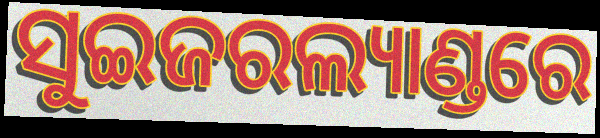
ସୁଇଜରଲ୍ୟାଣ୍ଡରେ